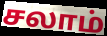
சலாம்